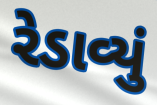
રેડાવ્યું